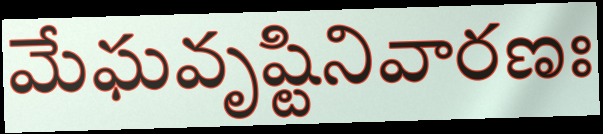
మేఘవృష్టినివారణః